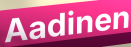
Aadinen